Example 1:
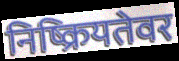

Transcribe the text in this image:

निष्क्रियतेवर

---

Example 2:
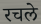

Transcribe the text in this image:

रचले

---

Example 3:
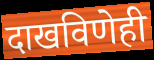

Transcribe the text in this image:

दाखविणेही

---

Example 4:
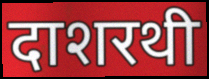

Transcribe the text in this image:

दाशरथी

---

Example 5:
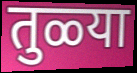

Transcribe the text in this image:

तुळ्या